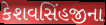
કેશવસિંહજીના